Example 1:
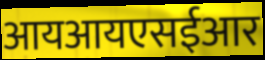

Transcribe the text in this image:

आयआयएसईआर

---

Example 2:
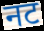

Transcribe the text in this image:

नट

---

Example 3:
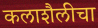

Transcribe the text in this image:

कलाशैलीचा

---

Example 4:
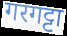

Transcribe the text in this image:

गरगट्टा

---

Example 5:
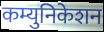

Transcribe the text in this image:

कम्युनिकेशन